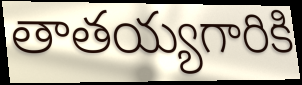
తాతయ్యగారికి